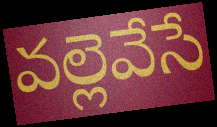
వల్లెవేసే